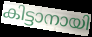
കിട്ടാനായി